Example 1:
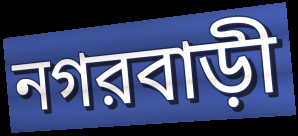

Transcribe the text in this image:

নগরবাড়ী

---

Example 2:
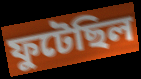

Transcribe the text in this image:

ফুটেছিল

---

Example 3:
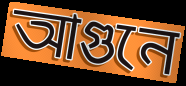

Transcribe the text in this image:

আগুনে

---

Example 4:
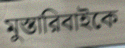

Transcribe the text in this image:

মুস্তারিবাইকে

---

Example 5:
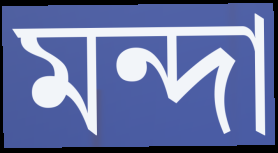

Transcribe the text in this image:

মন্দা